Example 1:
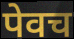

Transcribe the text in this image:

पेवच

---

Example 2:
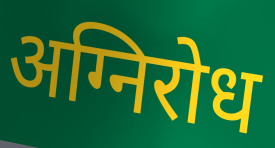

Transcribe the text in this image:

अग्निरोध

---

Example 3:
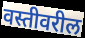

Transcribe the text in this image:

वस्तीवरील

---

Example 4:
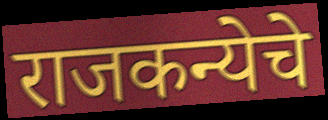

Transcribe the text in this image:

राजकन्येचे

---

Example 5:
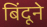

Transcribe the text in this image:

बिंदूने